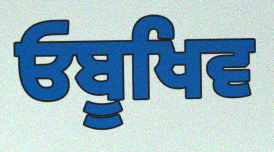
ਓਬੂਖਿਵ